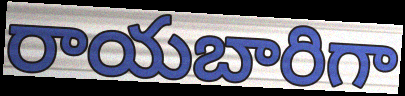
రాయబారిగా